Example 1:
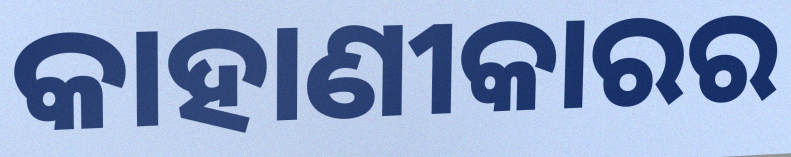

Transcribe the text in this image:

କାହାଣୀକାରର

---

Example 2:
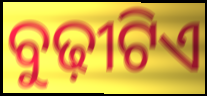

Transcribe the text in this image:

ବୁଢ଼ୀଟିଏ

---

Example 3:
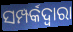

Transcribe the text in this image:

ସମ୍ପର୍କଦ୍ୱାରା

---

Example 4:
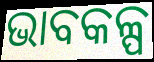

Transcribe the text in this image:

ଭାବକଳ୍ପ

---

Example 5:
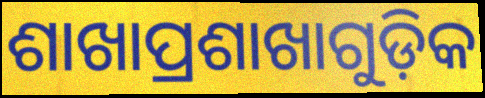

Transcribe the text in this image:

ଶାଖାପ୍ରଶାଖାଗୁଡ଼ିକ